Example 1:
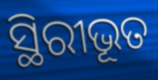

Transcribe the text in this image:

ସ୍ଥିରୀଭୂତ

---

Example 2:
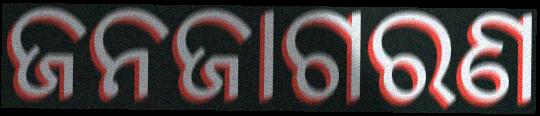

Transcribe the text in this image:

ଜନଜାଗରଣ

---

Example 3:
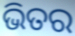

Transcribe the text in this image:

ଭିତର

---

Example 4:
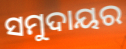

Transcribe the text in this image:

ସମୁଦାୟର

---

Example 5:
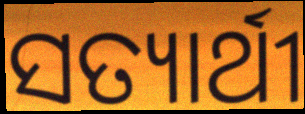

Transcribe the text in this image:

ସତ୍ୟାର୍ଥୀ